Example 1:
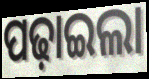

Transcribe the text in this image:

ପଢ଼ାଇଲା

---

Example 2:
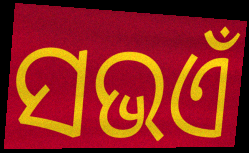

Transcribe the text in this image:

ସଭଏଁ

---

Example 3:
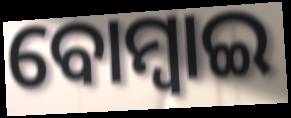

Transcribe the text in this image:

ବୋମ୍ୱାଇ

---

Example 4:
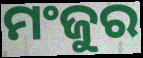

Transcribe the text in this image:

ମଂଜୁର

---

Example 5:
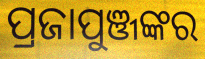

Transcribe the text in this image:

ପ୍ରଜାପୁଞ୍ଜଙ୍କର